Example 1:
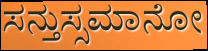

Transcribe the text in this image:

ಸನ್ತುಸ್ಸಮಾನೋ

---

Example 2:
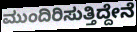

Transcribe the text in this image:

ಮುಂದಿರಿಸುತ್ತಿದ್ದೇನೆ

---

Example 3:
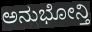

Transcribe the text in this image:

ಅನುಭೋನ್ತಿ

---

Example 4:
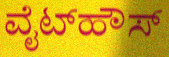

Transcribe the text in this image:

ವೈಟ್‌ಹೌಸ್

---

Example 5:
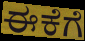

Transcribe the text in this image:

ಈಕೆಗೆ